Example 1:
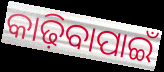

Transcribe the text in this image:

କାଢ଼ିବାପାଇଁ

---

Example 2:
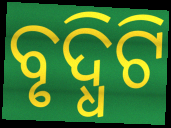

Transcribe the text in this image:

ବୃଦ୍ଧିଟି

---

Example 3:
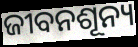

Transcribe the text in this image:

ଜୀବନଶୂନ୍ୟ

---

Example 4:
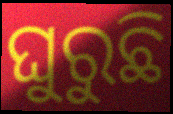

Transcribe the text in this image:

ଘୁରୁଛି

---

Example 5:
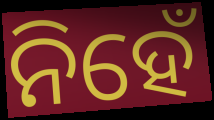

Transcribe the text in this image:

ନିହେଁ